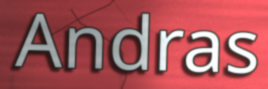
Andras